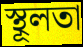
স্থূলতা